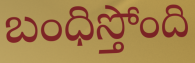
బంధిస్తోంది